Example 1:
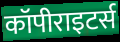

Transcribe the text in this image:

कॉपीराइटर्स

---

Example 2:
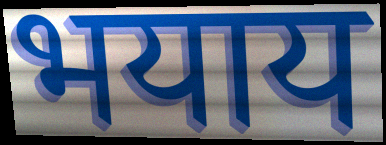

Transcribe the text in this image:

भयाय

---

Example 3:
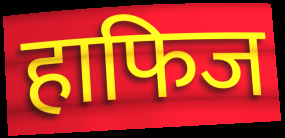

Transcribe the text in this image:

हाफिज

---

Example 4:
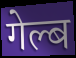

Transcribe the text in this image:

गेल्ब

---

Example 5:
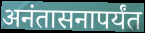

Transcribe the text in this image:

अनंतासनापर्यंत